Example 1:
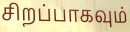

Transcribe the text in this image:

சிறப்பாகவும்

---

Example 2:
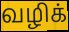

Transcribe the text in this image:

வழிக்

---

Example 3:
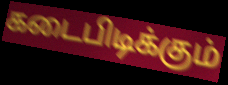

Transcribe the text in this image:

கடைபிடிக்கும்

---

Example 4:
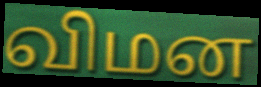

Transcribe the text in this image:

விமன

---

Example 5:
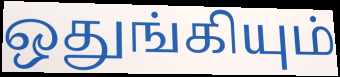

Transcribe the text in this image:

ஒதுங்கியும்